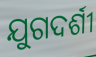
ଯୁଗଦର୍ଶୀ